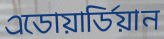
এডোয়ার্ডিয়ান